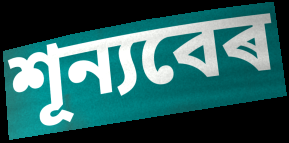
শূন্যবেৰ